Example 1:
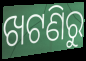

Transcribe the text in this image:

ଖଟଣିରୁ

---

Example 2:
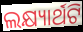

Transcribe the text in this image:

ଲକ୍ଷ୍ୟାର୍ଥଟି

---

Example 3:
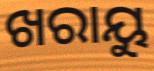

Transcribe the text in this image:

ଖରାୟୁ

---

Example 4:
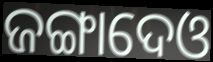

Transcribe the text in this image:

ଜଙ୍ଗାଦେଓ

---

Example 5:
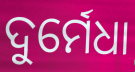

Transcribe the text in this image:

ଦୁର୍ମେଧା